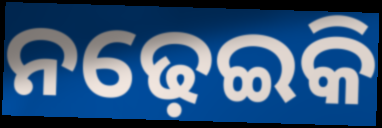
ନଢ଼େଇକି